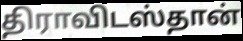
திராவிடஸ்தான்